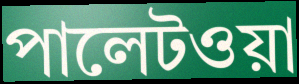
পালেটওয়া